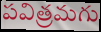
పవిత్రమగు